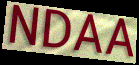
NDAA